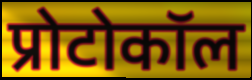
प्रोटोकॉल